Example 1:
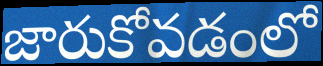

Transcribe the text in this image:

జారుకోవడంలో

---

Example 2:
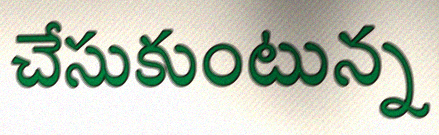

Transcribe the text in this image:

చేసుకుంటున్న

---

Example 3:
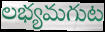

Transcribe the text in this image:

లభ్యమగుట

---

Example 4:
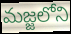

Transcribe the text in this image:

మజ్జలోని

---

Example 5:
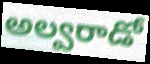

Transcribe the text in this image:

అల్వరాడో